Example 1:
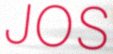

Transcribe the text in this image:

JOS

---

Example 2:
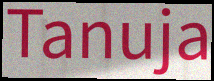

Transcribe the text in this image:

Tanuja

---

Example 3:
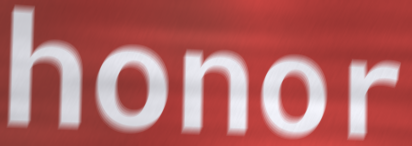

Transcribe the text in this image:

honor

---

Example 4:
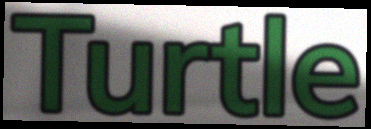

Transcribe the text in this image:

Turtle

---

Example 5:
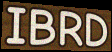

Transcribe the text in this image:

IBRD